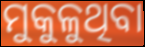
ମୁକୁଳୁଥିବା